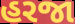
હરજા